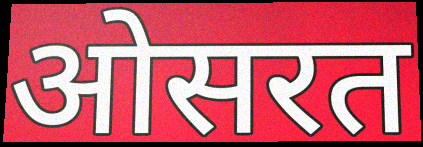
ओसरत